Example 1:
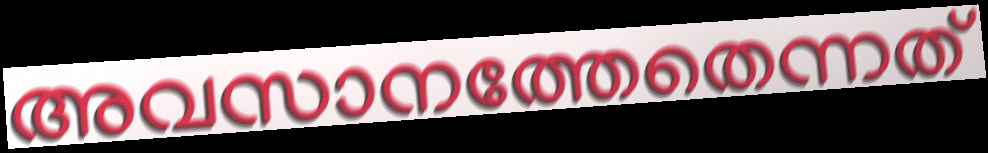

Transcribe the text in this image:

അവസാനത്തേതെന്നത്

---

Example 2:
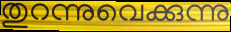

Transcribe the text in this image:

തുറന്നുവെക്കുന്നു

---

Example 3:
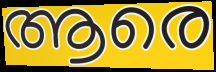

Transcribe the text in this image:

ആരെ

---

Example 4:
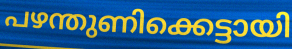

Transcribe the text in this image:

പഴന്തുണിക്കെട്ടായി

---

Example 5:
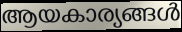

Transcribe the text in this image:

ആയകാര്യങ്ങൾ